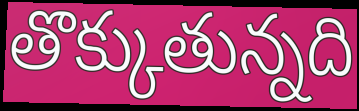
తొక్కుతున్నది